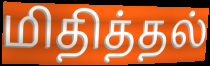
மிதித்தல்